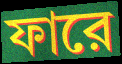
ফারে